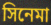
সিনেমা